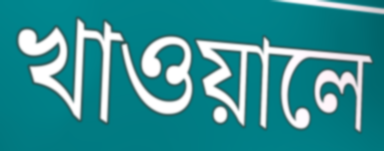
খাওয়ালে